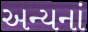
અન્યનાં